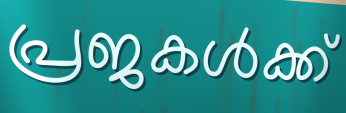
പ്രജകൾക്ക്